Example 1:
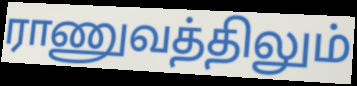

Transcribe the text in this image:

ராணுவத்திலும்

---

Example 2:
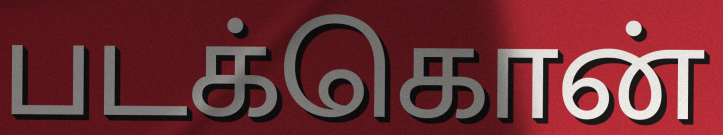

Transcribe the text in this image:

படக்கொன்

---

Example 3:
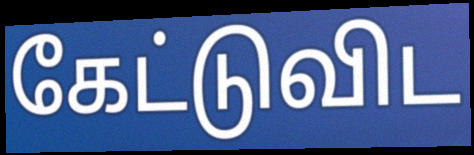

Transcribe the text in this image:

கேட்டுவிட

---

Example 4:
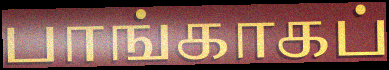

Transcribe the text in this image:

பாங்காகப்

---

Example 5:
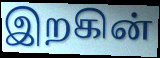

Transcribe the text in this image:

இறகின்